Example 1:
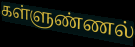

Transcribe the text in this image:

கள்ளுண்ணல்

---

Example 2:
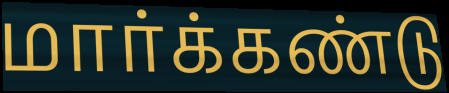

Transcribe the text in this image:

மார்க்கண்டு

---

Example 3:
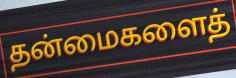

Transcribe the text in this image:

தன்மைகளைத்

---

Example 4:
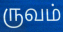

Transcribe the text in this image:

ருவம்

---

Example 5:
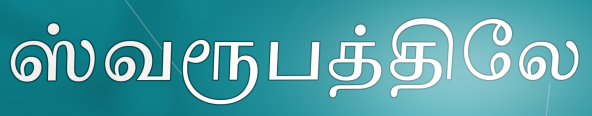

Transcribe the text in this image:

ஸ்வரூபத்திலே